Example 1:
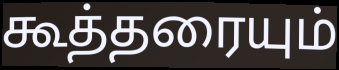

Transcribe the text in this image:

கூத்தரையும்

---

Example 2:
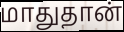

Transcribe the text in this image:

மாதுதான்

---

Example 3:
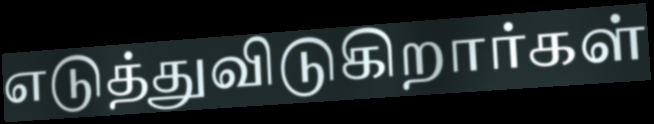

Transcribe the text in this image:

எடுத்துவிடுகிறார்கள்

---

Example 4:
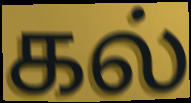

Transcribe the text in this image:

கல்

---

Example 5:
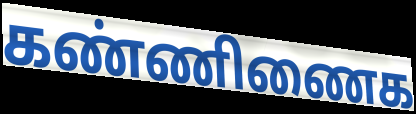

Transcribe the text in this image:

கண்ணிணைக